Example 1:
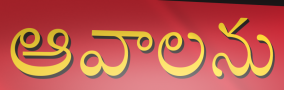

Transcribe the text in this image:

ఆవాలను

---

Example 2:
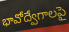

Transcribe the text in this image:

భావోద్వేగాలపై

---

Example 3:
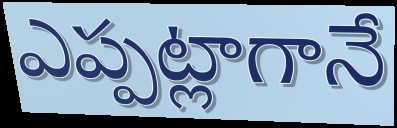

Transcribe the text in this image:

ఎప్పట్లాగానే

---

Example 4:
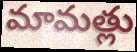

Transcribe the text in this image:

మామత్లు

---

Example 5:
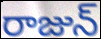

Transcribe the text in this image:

రాజున్